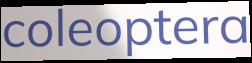
coleoptera